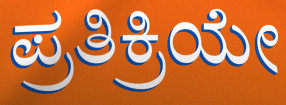
ಪ್ರತಿಕ್ರಿಯೇ